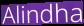
Alindha